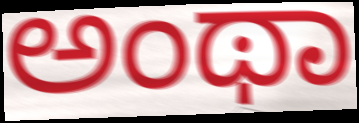
ಅಂಥಾ